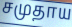
சமுதாய